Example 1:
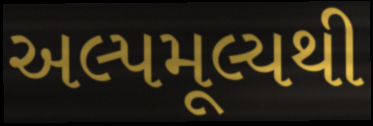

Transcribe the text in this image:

અલ્પમૂલ્યથી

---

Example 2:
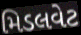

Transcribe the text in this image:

મિડલવેટ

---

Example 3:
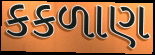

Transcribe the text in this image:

કકળાણ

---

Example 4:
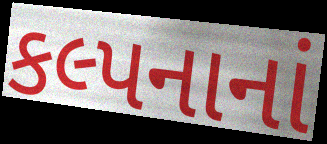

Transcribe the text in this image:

કલ્પનાનાં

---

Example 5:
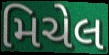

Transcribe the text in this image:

મિચેલ